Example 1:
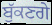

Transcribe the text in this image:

ਬੁੱਕਣਗੇ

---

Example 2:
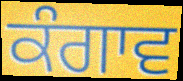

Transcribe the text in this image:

ਕੰਗਾਵ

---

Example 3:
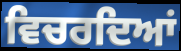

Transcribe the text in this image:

ਵਿਚਰਦਿਆਂ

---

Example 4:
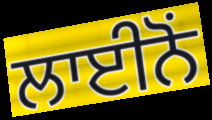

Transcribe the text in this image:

ਲਾਈਨੋਂ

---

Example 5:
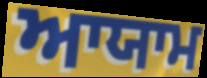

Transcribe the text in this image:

ਆਯਾਮ